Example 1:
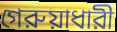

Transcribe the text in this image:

গেরুয়াধারী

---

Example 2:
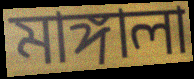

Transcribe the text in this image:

মাঙ্গালা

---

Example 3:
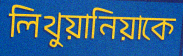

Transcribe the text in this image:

লিথুয়ানিয়াকে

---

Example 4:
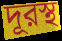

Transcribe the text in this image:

দূরস্থ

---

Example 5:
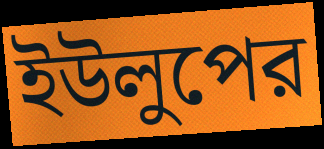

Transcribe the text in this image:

ইউলুপের